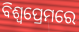
ବିଶ୍ୱପ୍ରେମରେ